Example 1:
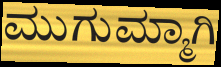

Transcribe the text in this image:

ಮುಗುಮ್ಮಾಗಿ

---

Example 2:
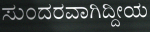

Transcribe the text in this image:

ಸುಂದರವಾಗಿದ್ದೀಯ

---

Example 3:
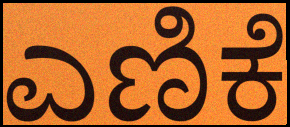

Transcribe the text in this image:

ಎಣಿಕೆ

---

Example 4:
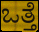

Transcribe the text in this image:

ಒತ್ತೆ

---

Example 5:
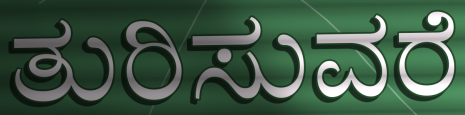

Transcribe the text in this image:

ತುರಿಸುವರೆ